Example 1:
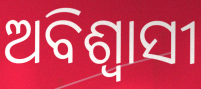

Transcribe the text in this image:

ଅବିଶ୍ଵାସୀ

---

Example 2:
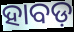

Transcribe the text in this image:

ହାବଡ଼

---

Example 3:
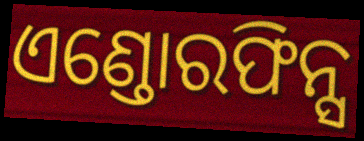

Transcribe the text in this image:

ଏଣ୍ଡୋରଫିନ୍ସ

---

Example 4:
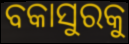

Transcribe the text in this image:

ବକାସୁରକୁ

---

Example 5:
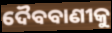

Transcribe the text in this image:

ଦୈବବାଣୀକୁ